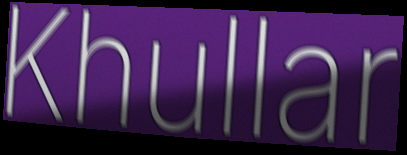
Khullar